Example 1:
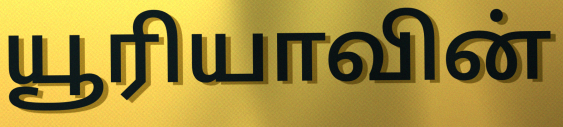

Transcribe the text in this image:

யூரியாவின்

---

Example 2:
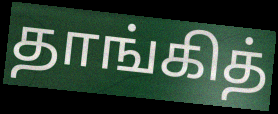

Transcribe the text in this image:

தாங்கித்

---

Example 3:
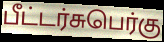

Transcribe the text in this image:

பீட்டர்சுபெர்கு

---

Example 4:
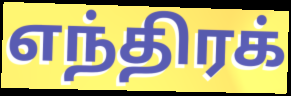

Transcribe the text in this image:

எந்திரக்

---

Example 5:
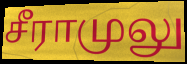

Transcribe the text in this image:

சீராமுலு